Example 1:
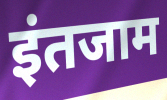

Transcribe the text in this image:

इंतजाम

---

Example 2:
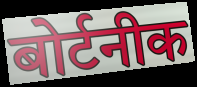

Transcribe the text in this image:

बोर्टनीक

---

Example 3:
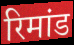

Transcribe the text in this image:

रिमांड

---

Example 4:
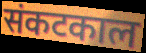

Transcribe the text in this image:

संकटकाल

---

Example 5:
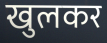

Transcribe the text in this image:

खुलकर